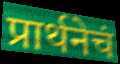
प्रार्थनेचं